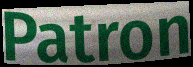
Patron